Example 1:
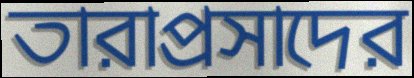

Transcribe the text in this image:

তারাপ্রসাদের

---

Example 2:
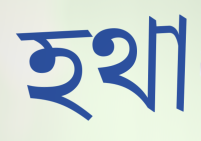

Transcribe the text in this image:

হথা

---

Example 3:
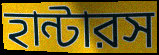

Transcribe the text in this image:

হান্টারস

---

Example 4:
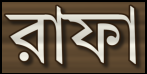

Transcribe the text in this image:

রাফা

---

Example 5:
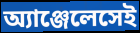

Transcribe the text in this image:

অ্যাঞ্জেলেসেই